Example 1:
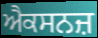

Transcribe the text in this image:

ਐਕਸਨਜ਼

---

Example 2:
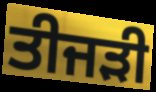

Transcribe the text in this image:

ਤੀਜੜੀ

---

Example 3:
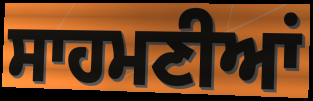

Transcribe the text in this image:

ਸਾਹਮਣੀਆਂ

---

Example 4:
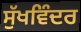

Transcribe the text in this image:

ਸੁੱਖਵਿੰਦਰ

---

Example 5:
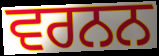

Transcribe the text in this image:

ਵਰਨਨ